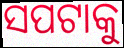
ସପଟାକୁ